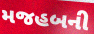
મજહબની